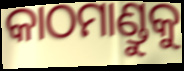
କାଠମାଣ୍ଡୁକୁ